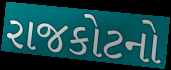
રાજકોટનો